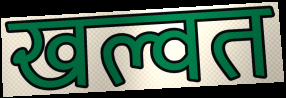
खल्वत